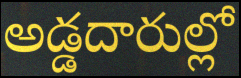
అడ్డదారుల్లో